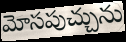
మోసపుచ్చును